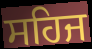
ਸਹਿਜ